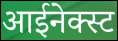
आईनेक्स्ट